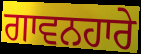
ਗਾਵਨਹਾਰੇ